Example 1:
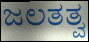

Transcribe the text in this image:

ಜಲತತ್ವ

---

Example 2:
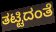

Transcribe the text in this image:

ತಟ್ಟಿದಂತೆ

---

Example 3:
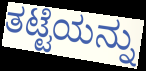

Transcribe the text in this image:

ತಟ್ಟೆಯನ್ನು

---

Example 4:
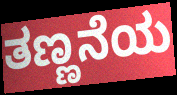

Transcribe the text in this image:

ತಣ್ಣನೆಯ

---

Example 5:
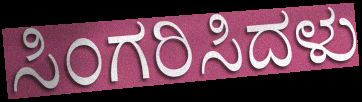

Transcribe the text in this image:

ಸಿಂಗರಿಸಿದಳು